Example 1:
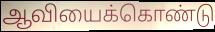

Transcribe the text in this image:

ஆவியைக்கொண்டு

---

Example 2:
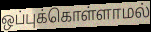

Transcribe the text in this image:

ஒப்புக்கொள்ளாமல்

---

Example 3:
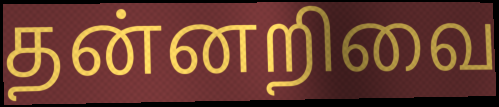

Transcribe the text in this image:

தன்னறிவை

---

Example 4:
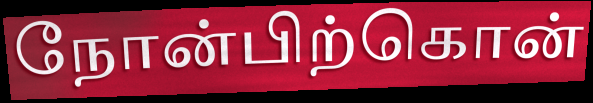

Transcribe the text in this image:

நோன்பிற்கொன்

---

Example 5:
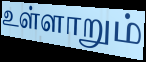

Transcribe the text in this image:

உள்ளாறும்